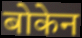
बोकेन